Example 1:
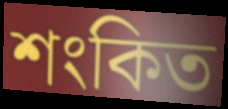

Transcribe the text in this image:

শংকিত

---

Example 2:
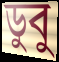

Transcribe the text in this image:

ডুবু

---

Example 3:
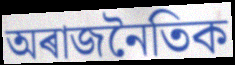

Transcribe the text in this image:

অৰাজনৈতিক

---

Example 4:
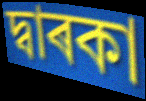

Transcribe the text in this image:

দ্বাৰকা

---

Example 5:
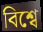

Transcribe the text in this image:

বিশ্বে